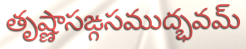
తృష్ణాసఙ్గసముద్భవమ్